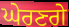
ਘੇਰਣਗੇ